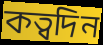
কত্বদিন